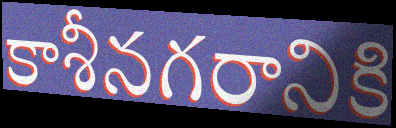
కాశీనగరానికి